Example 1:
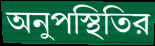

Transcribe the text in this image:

অনুপস্থিতির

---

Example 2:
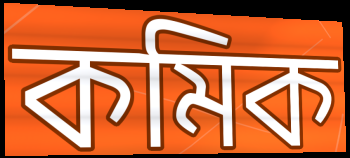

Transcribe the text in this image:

কমিক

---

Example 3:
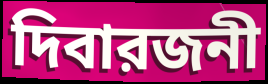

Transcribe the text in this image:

দিবারজনী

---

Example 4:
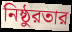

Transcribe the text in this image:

নিষ্ঠুরতার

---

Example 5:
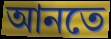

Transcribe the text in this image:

আনতে